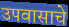
उपवासाचे